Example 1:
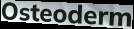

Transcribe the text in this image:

Osteoderm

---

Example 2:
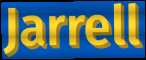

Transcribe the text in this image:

Jarrell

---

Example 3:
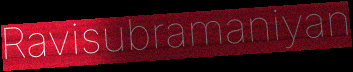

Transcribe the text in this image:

Ravisubramaniyan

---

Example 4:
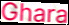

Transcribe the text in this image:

Ghara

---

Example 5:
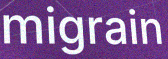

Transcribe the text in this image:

migrain